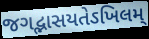
જગદ્ભાસયતેઽખિલમ્